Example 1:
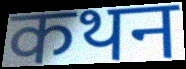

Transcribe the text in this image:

कथन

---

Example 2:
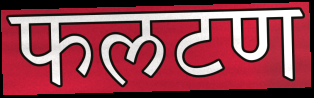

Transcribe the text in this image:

फलटण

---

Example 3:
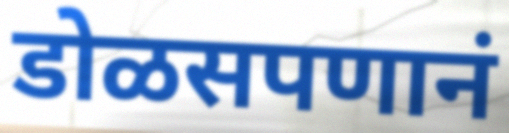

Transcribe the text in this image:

डोळसपणानं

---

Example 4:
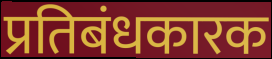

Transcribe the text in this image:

प्रतिबंधकारक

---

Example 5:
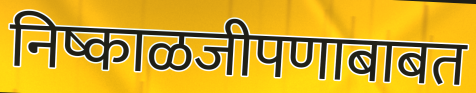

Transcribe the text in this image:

निष्काळजीपणाबाबत